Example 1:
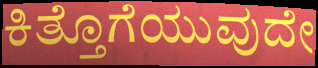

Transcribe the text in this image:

ಕಿತ್ತೊಗೆಯುವುದೇ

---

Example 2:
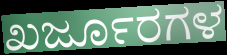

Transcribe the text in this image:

ಖರ್ಜೂರಗಳ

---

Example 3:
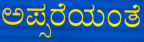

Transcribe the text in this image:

ಅಪ್ಸರೆಯಂತೆ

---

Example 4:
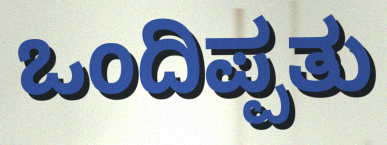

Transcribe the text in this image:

ಒಂದಿಪ್ಪತು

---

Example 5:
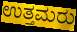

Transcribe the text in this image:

ಉತ್ತಮರು